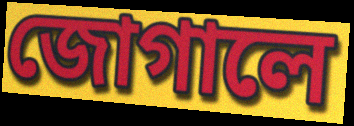
জোগালে